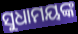
ସୁଧାମୟଙ୍କ